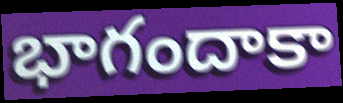
భాగందాకా